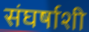
संघर्षाशी